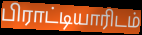
பிராட்டியாரிடம்